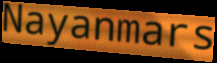
Nayanmars